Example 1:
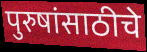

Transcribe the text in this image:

पुरुषांसाठीचे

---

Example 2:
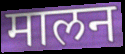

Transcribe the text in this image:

मालन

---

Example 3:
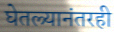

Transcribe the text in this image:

घेतल्यानंतरही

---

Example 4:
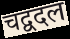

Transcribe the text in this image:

चद्वदल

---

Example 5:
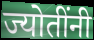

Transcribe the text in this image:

ज्योतींनी